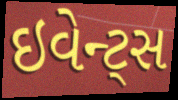
ઇવેન્ટ્સ